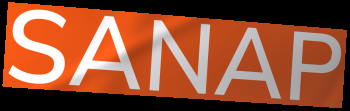
SANAP